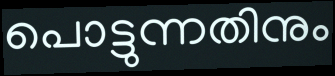
പൊട്ടുന്നതിനും